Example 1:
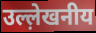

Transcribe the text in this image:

उल्ल़ेखनीय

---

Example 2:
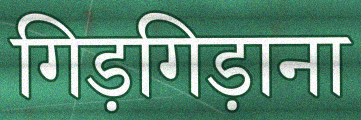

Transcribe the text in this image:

गिड़गिड़ाना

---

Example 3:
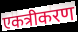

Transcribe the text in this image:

एकत्रीकरण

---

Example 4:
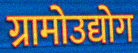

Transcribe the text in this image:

ग्रामोउद्योग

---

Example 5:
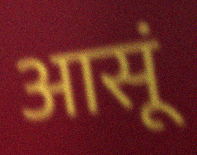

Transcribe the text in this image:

आसूं